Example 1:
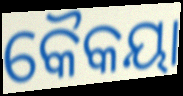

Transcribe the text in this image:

କୈକୟା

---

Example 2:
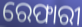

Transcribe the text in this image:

ରେଫାରୀ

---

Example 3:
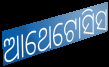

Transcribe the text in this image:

ଆଥେଟୋସିସ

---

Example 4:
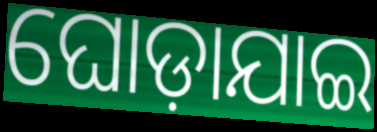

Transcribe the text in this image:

ଘୋଡ଼ାଯାଇ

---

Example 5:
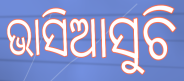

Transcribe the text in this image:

ଭାସିଆସୁଚି